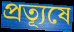
প্রত্যূষে